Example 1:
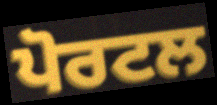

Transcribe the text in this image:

ਪੋਰਟਲ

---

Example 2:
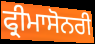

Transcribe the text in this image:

ਫ੍ਰੀਮਾਸੋਨਰੀ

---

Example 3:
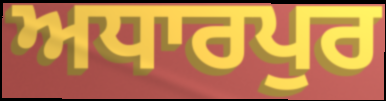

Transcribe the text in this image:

ਅਧਾਰਪੁਰ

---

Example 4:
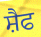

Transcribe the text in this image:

ਸ਼ੈਫ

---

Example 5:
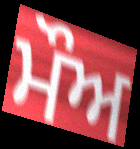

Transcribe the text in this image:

ਮੌਅ